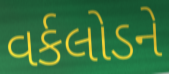
વર્કલોડને